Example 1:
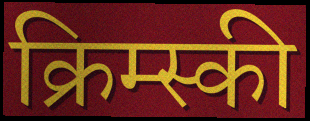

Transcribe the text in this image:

क्रिम्स्की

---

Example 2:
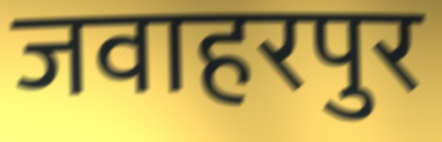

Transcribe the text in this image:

जवाहरपुर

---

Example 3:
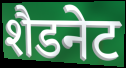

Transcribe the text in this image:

शैडनेट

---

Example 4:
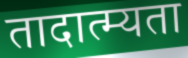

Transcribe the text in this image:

तादात्म्यता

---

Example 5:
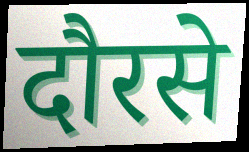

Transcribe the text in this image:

दौरसे